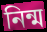
নিন্ম